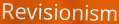
Revisionism